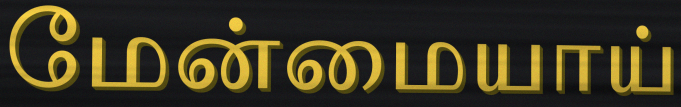
மேன்மையாய்